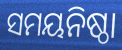
ସମୟନିଷ୍ଠା